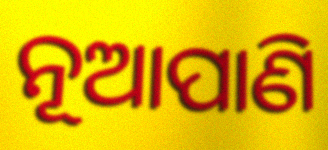
ନୂଆପାଣି